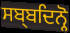
ਸਬ੍ਬਦਿਨ੍ਨੋ